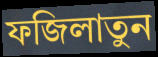
ফজিলাতুন